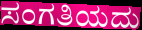
ಸಂಗತಿಯದು